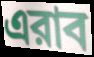
এরাব